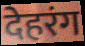
देहरंग